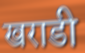
खराडी